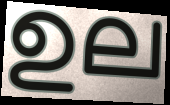
ഉല